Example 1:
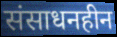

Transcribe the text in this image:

संसाधनहीन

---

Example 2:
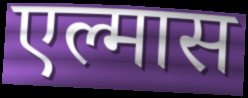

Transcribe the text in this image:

एल्मास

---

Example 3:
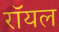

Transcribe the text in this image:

रॉयल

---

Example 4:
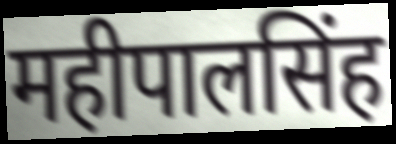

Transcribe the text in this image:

महीपालसिंह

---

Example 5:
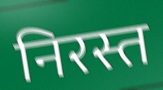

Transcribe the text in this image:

निरस्त